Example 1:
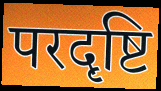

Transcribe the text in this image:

परदृष्टि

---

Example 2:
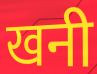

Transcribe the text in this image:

खनी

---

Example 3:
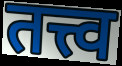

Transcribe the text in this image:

तत्त्व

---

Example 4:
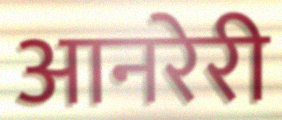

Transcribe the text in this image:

आनरेरी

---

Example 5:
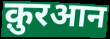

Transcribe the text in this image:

क़ुरआन